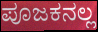
ಪೂಜಕನಲ್ಲ